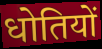
धोतियों